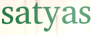
satyas